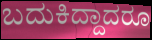
ಬದುಕಿದ್ದಾದರೂ